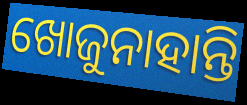
ଖୋଜୁନାହାନ୍ତି